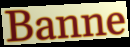
Banne